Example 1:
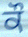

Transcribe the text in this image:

ਕੌ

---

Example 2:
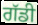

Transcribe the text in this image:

ਗੱਡੀ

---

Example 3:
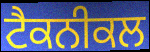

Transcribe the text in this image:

ਟੈਕਨੀਕਲ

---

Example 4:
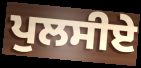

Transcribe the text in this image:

ਪੁਲਸੀਏ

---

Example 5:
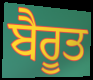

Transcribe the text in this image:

ਬੈਰੂਤ